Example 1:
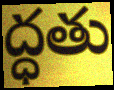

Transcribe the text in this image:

ద్ధతు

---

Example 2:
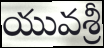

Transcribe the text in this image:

యువశ్రీ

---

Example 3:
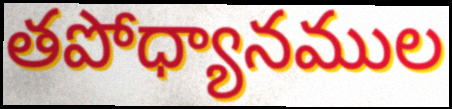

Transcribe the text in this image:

తపోధ్యానముల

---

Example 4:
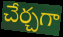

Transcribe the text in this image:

చేర్చగా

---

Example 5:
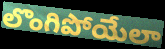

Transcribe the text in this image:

లొంగిపోయేలా